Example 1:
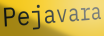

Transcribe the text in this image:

Pejavara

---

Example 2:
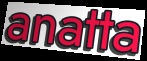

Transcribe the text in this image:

anatta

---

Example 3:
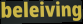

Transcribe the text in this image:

beleiving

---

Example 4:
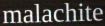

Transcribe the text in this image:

malachite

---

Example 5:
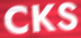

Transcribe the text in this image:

CKS